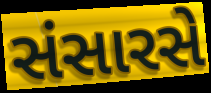
સંસારસે